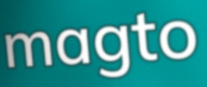
magto